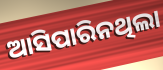
ଆସିପାରିନଥିଲା